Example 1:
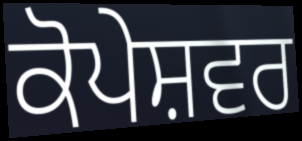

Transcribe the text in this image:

ਕੋਪੇਸ਼ਵਰ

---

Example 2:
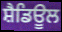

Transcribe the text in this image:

ਸ਼ੈਡਿਊਲ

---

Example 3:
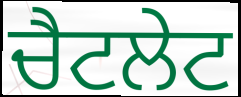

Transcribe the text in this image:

ਚੈਟਲੇਟ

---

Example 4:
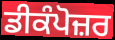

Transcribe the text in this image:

ਡੀਕੰਪੋਜ਼ਰ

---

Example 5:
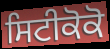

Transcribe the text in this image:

ਸਿਟੀਕੋਕੋ